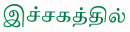
இச்சகத்தில்